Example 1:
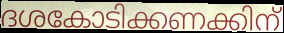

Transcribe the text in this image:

ദശകോടിക്കണക്കിന്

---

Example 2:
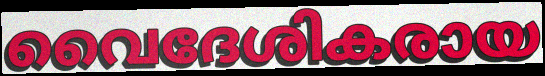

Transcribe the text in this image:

വൈദേശികരായ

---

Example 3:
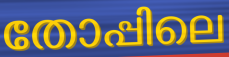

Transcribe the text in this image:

തോപ്പിലെ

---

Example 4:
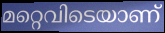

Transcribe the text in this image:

മറ്റെവിടെയാണ്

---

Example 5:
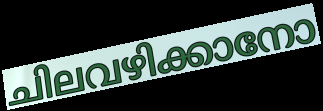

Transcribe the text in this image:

ചിലവഴിക്കാനോ